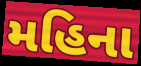
મહિના